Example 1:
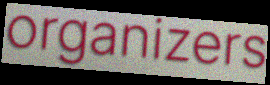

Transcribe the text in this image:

organizers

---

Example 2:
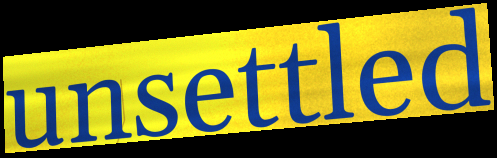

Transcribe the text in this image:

unsettled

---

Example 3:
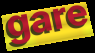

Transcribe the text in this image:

gare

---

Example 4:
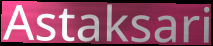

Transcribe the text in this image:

Astaksari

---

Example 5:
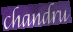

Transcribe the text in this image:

chandru